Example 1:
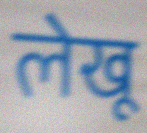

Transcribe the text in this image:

लेखू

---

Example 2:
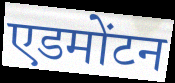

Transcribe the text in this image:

एडमोंटन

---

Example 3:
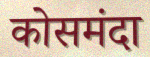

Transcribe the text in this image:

कोसमंदा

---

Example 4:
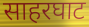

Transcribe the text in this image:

साहरघाट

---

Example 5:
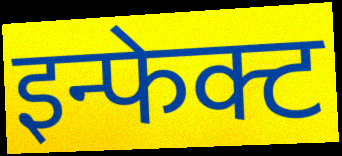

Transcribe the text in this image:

इन्फेक्ट